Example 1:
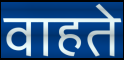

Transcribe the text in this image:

वाहते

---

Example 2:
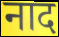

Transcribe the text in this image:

नाद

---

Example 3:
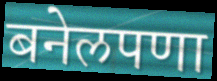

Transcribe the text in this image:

बनेलपणा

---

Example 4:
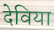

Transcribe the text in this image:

देविया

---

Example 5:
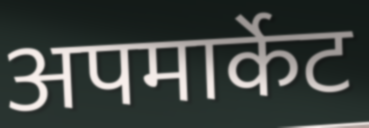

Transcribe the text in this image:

अपमार्केट